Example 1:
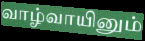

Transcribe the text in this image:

வாழ்வாயினும்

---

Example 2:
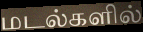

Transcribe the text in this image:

மடல்களில்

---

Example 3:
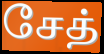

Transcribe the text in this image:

சேத்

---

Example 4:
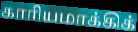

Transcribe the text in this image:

காரியமாக்கிக்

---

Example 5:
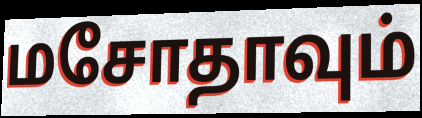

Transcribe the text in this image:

மசோதாவும்